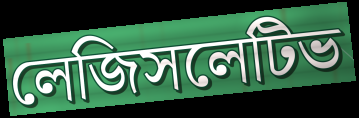
লেজিসলেটিভ